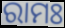
ରାମଃ